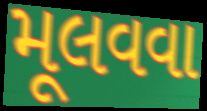
મૂલવવા